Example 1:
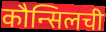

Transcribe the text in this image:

कौन्सिलची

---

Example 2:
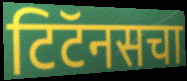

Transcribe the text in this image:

टिटॅनसचा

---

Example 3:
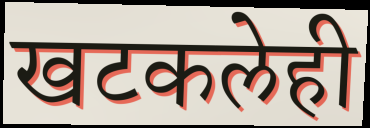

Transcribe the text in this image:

खटकलेही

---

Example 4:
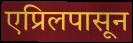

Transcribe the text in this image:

एप्रिलपासून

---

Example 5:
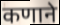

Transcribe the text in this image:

कणाने